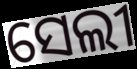
ସେଲୀ